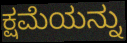
ಕ್ಷಮೆಯನ್ನು